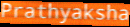
Prathyaksha